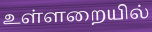
உள்ளறையில்